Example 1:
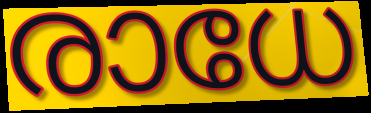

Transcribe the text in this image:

രാധേ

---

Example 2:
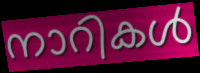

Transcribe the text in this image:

നാറികൾ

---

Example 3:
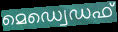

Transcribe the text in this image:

മെഡ്വെഡഫ്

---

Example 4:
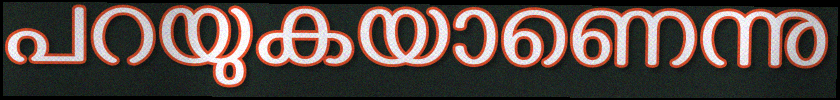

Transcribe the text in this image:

പറയുകയാണെന്നു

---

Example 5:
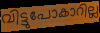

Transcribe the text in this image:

വിട്ടുപോകാറില്ല